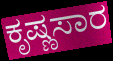
ಕೃಷ್ಣಸಾರ